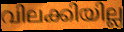
വിലക്കിയില്ല